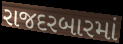
રાજદરબારમાં